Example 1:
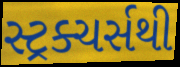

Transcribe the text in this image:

સ્ટ્રક્ચર્સથી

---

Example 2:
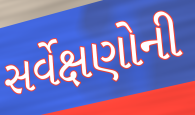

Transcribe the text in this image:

સર્વેક્ષણોની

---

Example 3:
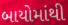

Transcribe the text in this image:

બાયોમાંથી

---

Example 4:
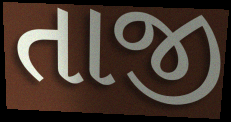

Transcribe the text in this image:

તાજી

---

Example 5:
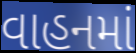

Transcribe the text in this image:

વાહનમાં